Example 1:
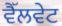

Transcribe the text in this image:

ਵੈੱਲਵੇਟ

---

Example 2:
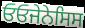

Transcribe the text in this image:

ਓਓਜੇਨੇਸਿਸ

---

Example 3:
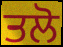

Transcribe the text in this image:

ਤਲੋ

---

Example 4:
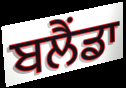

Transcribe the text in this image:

ਬਲੈਂਡਾ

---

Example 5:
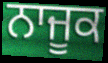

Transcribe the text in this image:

ਨਾਜੂਕ